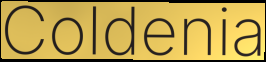
Coldenia